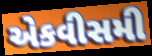
એકવીસમી